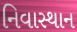
નિવાસ્થાન